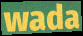
wada